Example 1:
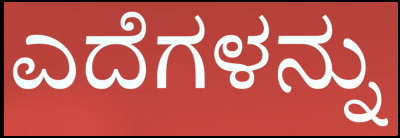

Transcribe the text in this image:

ಎದೆಗಳನ್ನು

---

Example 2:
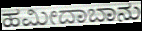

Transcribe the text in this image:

ಹಮೀದಾಬಾನು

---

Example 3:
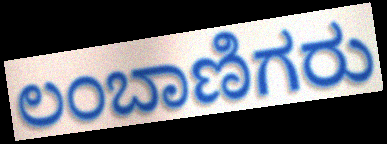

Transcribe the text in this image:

ಲಂಬಾಣಿಗರು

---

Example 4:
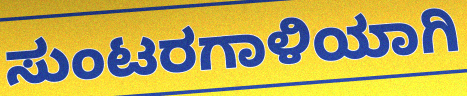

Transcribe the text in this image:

ಸುಂಟರಗಾಳಿಯಾಗಿ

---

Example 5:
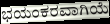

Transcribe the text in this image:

ಭಯಂಕರವಾಗಿಯೆ